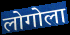
लोगोला